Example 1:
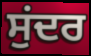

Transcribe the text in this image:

ਸੁਂਦਰ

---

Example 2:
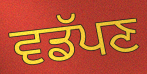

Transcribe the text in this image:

ਵਡੱਪਣ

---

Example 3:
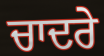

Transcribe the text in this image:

ਚਾਦਰੇ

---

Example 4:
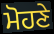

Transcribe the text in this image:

ਮੋਹਣੇ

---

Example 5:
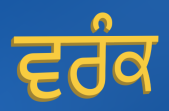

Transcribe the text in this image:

ਵਰੰਕ